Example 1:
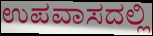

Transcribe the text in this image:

ಉಪವಾಸದಲ್ಲಿ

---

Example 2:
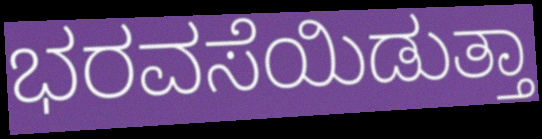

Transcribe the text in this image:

ಭರವಸೆಯಿಡುತ್ತಾ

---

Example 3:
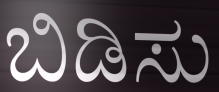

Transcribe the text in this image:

ಬಿಡಿಸು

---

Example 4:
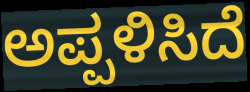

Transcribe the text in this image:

ಅಪ್ಪಳಿಸಿದೆ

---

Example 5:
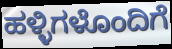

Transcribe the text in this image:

ಹಳ್ಳಿಗಳೊಂದಿಗೆ